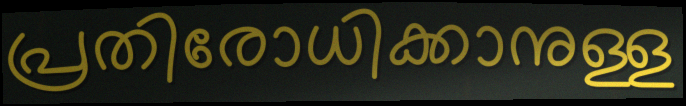
പ്രതിരോധിക്കാനുള്ള